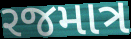
રજમાત્ર